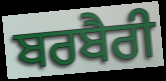
ਬਰਬੈਰੀ